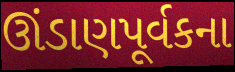
ઊંડાણપૂર્વકના